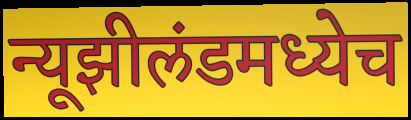
न्यूझीलंडमध्येच